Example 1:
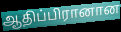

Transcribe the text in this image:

ஆதிப்பிரானான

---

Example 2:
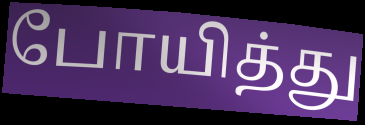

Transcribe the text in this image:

போயித்து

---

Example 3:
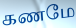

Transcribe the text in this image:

கணமே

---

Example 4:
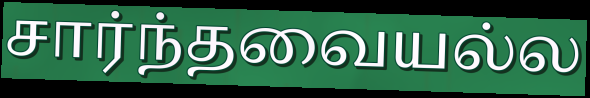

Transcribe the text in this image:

சார்ந்தவையல்ல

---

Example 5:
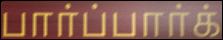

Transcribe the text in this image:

பார்ப்பார்க்